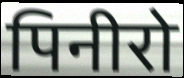
पिनीरो